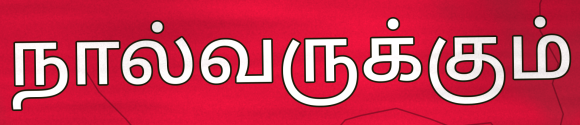
நால்வருக்கும்